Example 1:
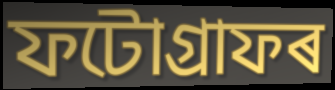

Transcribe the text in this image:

ফটোগ্ৰাফৰ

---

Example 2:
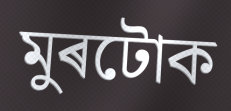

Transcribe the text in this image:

মুৰটোক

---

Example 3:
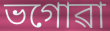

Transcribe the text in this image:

ভগোৱা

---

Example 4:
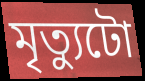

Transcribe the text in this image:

মৃত্যুটো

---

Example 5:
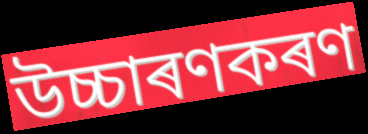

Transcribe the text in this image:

উচ্চাৰণকৰণ